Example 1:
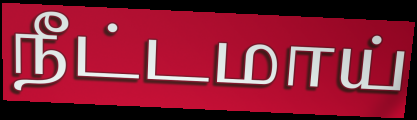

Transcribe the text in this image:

நீட்டமாய்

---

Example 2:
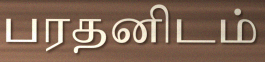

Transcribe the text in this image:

பரதனிடம்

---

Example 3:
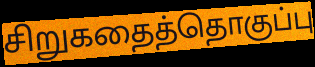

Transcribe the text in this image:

சிறுகதைத்தொகுப்பு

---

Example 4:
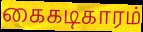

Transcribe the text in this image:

கைகடிகாரம்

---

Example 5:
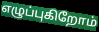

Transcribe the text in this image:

எழுப்புகிறோம்